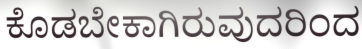
ಕೊಡಬೇಕಾಗಿರುವುದರಿಂದ